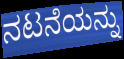
ನಟನೆಯನ್ನು